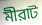
মীরাট